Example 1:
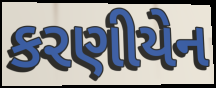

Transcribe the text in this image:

કરણીયેન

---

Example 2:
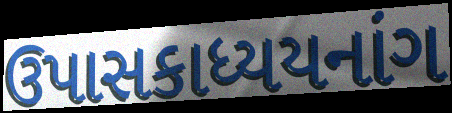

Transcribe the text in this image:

ઉપાસકાધ્યયનાંગ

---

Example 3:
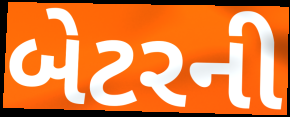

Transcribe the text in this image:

બેટરની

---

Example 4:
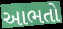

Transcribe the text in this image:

આભતો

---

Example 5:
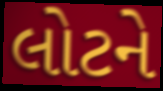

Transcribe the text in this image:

લોટને